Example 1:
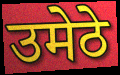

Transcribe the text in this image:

उमेठे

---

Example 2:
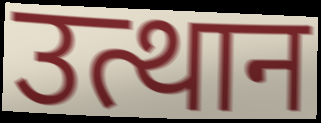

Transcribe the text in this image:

उत्थान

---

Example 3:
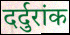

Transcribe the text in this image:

दर्दुरांक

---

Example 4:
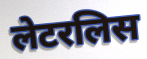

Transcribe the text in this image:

लेटरलिस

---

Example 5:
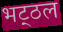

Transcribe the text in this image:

भट्‌ठल